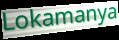
Lokamanya